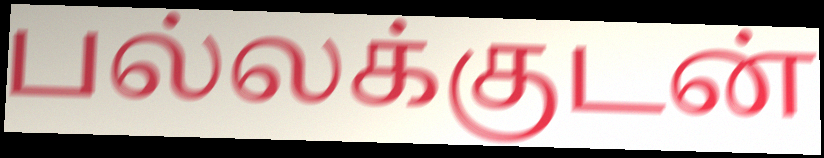
பல்லக்குடன்